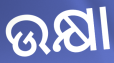
ଉକ୍ଷା